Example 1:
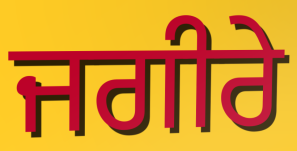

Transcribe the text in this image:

ਜਗੀਰੇ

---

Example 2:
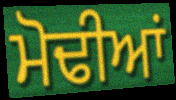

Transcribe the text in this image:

ਮੋਢੀਆਂ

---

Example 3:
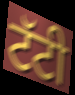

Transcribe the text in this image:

ਟੱਟੀ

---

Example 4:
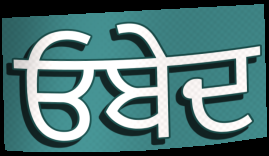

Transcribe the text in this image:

ਓਬੇਦ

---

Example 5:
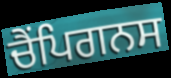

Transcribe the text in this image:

ਚੈਂਪਿਗਨਸ